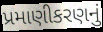
પ્રમાણીકરણનું